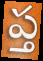
ప్త